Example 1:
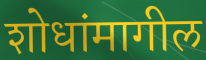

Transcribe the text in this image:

शोधांमागील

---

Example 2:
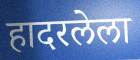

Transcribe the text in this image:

हादरलेला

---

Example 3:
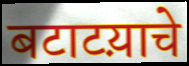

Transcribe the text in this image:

बटाटय़ाचे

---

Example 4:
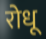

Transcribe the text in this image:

रोधू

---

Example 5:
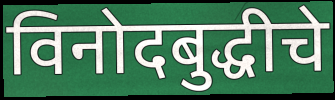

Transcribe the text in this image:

विनोदबुद्धीचे